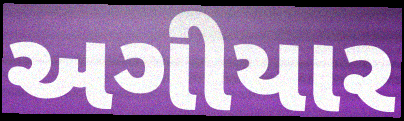
અગીયાર